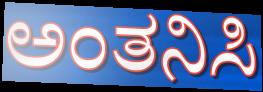
ಅಂತನಿಸಿ